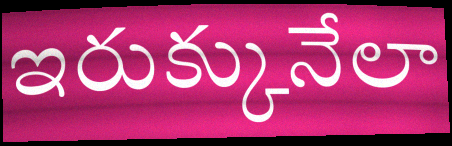
ఇరుక్కునేలా